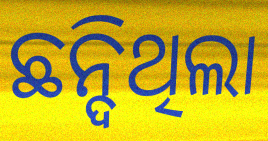
ଛନ୍ଦିଥିଲା